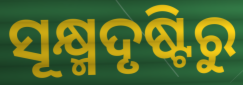
ସୂକ୍ଷ୍ମଦୃଷ୍ଟିରୁ